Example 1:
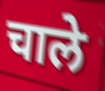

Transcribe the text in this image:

चाले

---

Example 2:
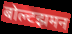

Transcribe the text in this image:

बोल्टझमन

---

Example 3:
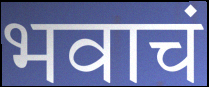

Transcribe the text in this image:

भवाचं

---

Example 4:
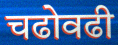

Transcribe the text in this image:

चढोवढी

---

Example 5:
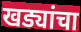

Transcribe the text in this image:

खड्यांचा